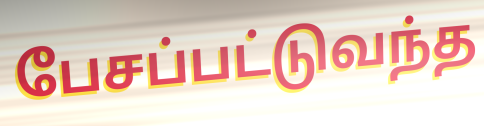
பேசப்பட்டுவந்த